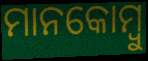
ମାନକୋମ୍ବୁ